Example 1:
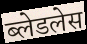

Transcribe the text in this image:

ब्लेडलेस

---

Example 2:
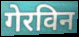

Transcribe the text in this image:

गेरविन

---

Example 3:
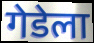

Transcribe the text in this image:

गेडेला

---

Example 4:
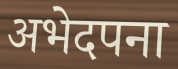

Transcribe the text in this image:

अभेदपना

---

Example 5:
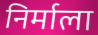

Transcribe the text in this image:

निर्माला